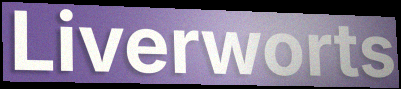
Liverworts